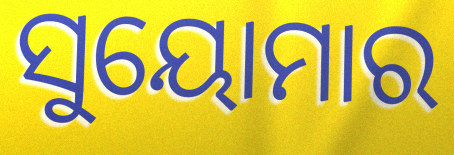
ସୁୟୋମାର